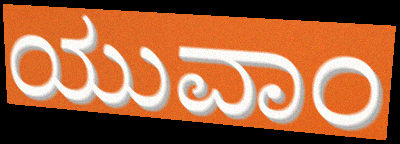
ಯುವಾಂ